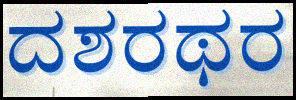
ದಶರಥರ